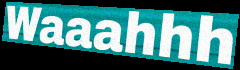
Waaahhh